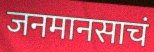
जनमानसाचं